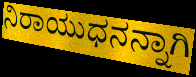
ನಿರಾಯುಧನನ್ನಾಗಿ